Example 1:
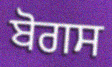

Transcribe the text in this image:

ਬੋਗਸ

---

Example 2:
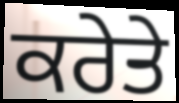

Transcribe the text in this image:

ਕਰੇਤੇ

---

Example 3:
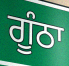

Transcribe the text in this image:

ਗੂੰਠਾ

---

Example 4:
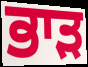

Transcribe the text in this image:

ਭਾੜ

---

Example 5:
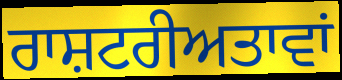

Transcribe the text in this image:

ਰਾਸ਼ਟਰੀਅਤਾਵਾਂ